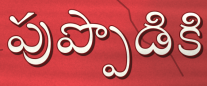
పుప్పొడికి